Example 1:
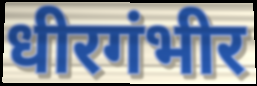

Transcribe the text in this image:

धीरगंभीर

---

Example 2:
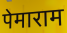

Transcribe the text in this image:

पेमाराम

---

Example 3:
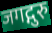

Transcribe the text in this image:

जगद्गुरु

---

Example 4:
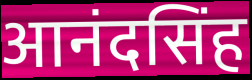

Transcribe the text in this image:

आनंदसिंह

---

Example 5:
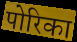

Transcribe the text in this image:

पोरिका